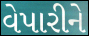
વેપારીને